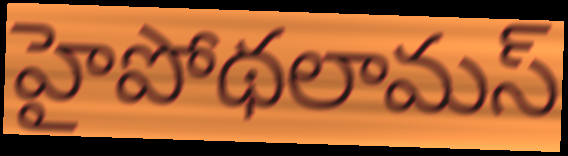
హైపోథలామస్